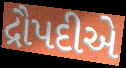
દ્રૌપદીએ